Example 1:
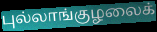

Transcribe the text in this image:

புல்லாங்குழலைக்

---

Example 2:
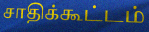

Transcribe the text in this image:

சாதிக்கூட்டம்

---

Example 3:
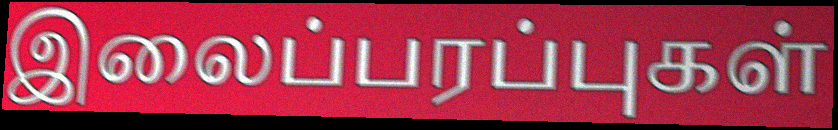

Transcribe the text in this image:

இலைப்பரப்புகள்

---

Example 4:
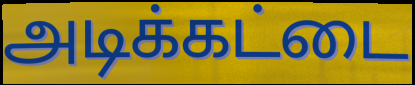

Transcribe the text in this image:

அடிக்கட்டை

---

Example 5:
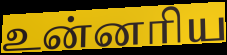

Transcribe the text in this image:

உன்னரிய